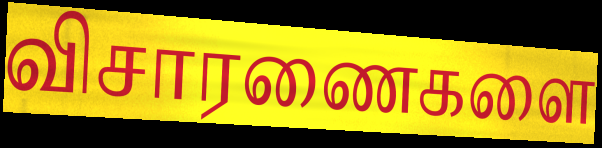
விசாரணைகளை